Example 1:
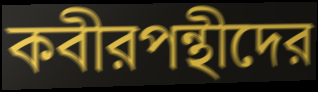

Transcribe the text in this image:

কবীরপন্থীদের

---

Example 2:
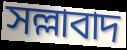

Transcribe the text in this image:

সল্লাবাদ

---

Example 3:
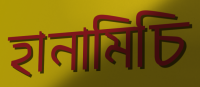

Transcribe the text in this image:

হানামিচি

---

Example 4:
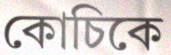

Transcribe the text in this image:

কোচিকে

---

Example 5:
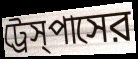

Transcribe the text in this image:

ট্রেস্‌পাসের